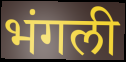
भंगली